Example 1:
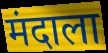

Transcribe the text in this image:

मंदाला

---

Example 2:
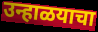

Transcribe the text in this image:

उन्हाळयाचा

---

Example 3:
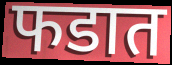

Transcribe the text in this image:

फडात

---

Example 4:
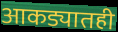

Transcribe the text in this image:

आकड्यातही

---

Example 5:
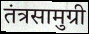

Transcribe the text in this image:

तंत्रसामुग्री